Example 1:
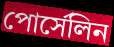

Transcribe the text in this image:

পোর্সেলিন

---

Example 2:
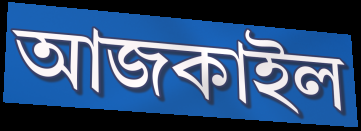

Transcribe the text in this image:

আজকাইল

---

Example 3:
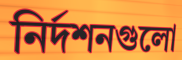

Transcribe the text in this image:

নির্দশনগুলো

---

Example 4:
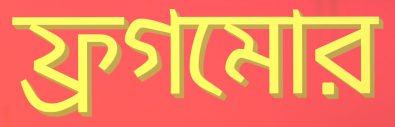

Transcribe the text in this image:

ফ্রগমোর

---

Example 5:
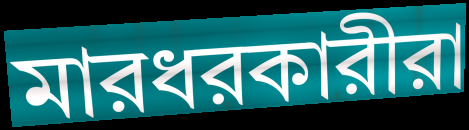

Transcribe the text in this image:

মারধরকারীরা